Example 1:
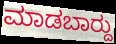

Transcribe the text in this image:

ಮಾಡಬಾರ್‍ದು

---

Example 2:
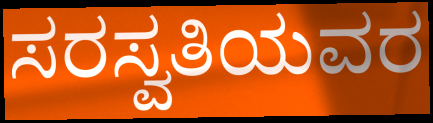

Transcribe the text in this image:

ಸರಸ್ವತಿಯವರ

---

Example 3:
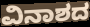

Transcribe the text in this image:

ವಿನಾಶದ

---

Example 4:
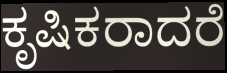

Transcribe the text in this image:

ಕೃಷಿಕರಾದರೆ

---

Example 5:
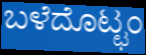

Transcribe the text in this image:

ಬಳೆದೊಟ್ಟಂ